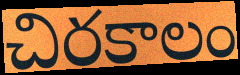
చిరకాలం